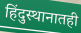
हिंदुस्थानातही